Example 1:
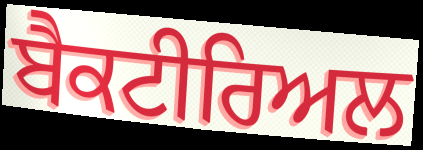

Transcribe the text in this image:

ਬੈਕਟੀਰਿਅਲ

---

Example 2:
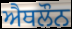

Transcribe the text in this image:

ਐਥਲੌਨ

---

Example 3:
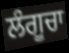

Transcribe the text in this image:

ਲੰਗੂਚਾ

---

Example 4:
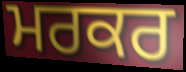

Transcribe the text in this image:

ਮਰਕਰ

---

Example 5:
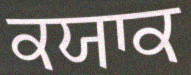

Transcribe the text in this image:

ਕਯਾਕ